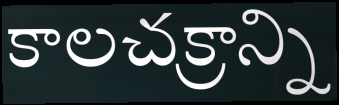
కాలచక్రాన్ని